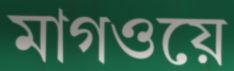
মাগওয়ে